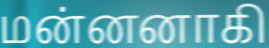
மன்னனாகி